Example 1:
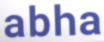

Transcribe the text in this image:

abha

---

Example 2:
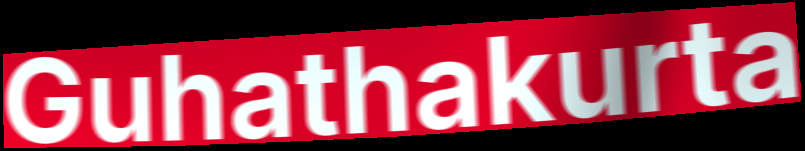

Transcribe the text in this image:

Guhathakurta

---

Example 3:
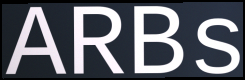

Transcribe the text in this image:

ARBs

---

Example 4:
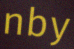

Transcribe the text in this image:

nby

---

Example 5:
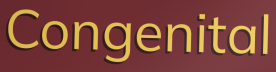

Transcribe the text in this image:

Congenital